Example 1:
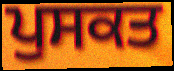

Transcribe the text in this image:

ਪੁਸਕਤ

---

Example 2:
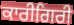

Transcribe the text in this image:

ਕਾਰੀਗਿਰੀ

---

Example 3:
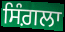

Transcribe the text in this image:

ਸਿੰਗ਼ਲਾ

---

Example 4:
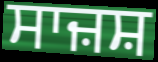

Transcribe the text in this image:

ਸਾਜ਼ਸ਼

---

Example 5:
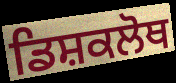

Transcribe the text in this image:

ਡਿਸ਼ਕਲੋਥ